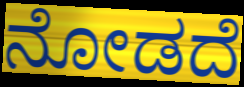
ನೋಡದೆ